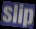
slip